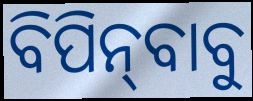
ବିପିନ୍‌ବାବୁ